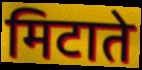
मिटाते